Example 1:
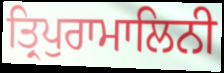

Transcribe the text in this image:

ਤ੍ਰਿਪੁਰਾਮਾਲਿਨੀ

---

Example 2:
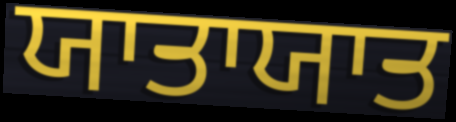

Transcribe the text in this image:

ਯਾਤਾਯਾਤ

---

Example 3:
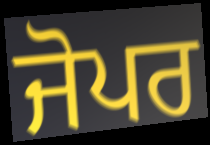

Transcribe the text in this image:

ਜੋਪਰ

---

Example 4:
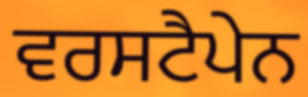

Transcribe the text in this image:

ਵਰਸਟੈਪੇਨ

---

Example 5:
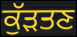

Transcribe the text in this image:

ਕੁੱੜਤਣ